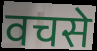
वचसे